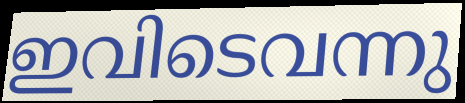
ഇവിടെവന്നു